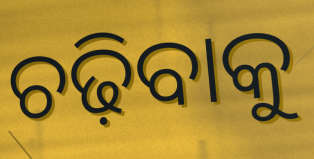
ଚଢ଼ିବାକୁ